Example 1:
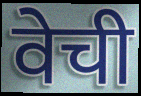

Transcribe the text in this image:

वेची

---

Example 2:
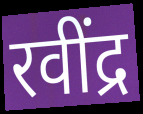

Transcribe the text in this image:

रवींद्र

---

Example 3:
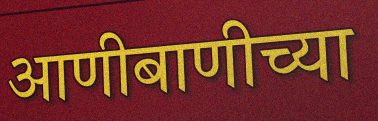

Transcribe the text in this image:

आणीबाणीच्या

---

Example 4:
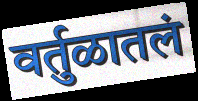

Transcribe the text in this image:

वर्तुळातलं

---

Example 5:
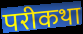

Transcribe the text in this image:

परीकथा